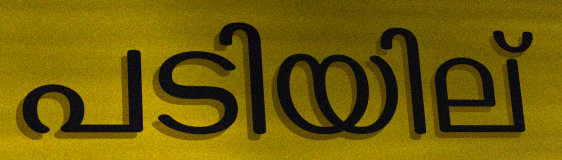
പടിയില്